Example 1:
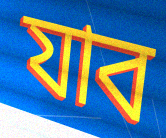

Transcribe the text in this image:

যাব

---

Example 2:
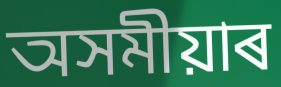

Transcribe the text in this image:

অসমীয়াৰ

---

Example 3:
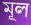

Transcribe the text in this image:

মূল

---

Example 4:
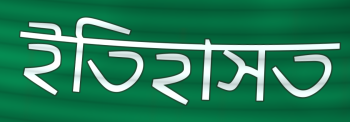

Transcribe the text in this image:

ইতিহাসত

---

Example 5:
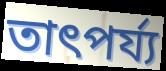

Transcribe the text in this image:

তাৎপৰ্য্য